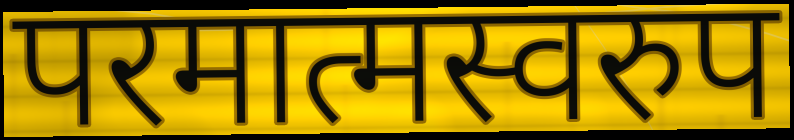
परमात्मस्वरुप